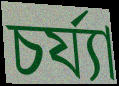
চর্য্যা